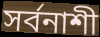
সৰ্বনাশী